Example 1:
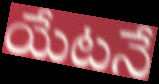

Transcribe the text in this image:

యేటనే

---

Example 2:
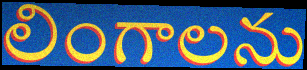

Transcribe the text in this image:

లింగాలను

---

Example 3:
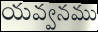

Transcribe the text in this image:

యవ్వనము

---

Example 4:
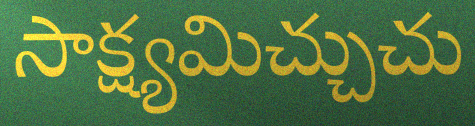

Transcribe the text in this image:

సాక్ష్యమిచ్చుచు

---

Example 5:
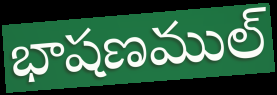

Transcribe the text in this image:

భాషణముల్